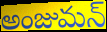
అంజుమన్